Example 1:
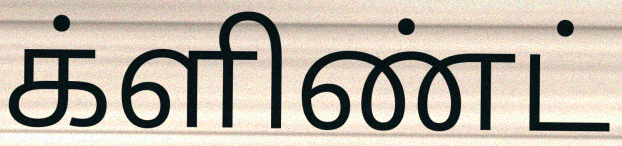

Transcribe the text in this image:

க்ளிண்ட்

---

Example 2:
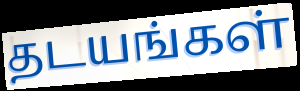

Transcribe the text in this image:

தடயங்கள்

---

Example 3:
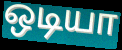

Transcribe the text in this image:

ஒடியா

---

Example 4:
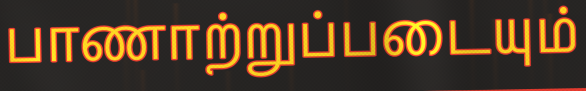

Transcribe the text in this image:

பாணாற்றுப்படையும்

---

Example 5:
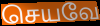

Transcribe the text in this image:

செயவே